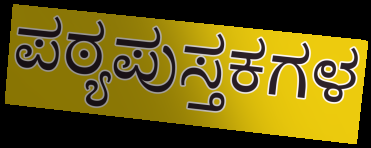
ಪಠ್ಯಪುಸ್ತಕಗಳ